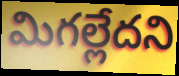
మిగల్లేదని